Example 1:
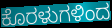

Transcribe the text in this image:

ಕೊರಳುಗಳಿಂದ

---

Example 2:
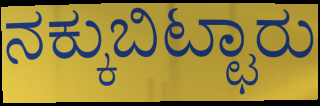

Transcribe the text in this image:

ನಕ್ಕುಬಿಟ್ಟಾರು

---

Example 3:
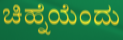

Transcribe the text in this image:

ಚಿಹ್ನೆಯೆಂದು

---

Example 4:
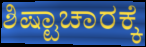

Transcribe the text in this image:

ಶಿಷ್ಟಾಚಾರಕ್ಕೆ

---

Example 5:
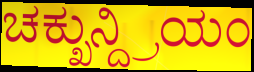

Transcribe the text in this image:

ಚಕ್ಖುನ್ದ್ರಿಯಂ